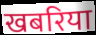
खबरिया